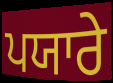
ਪਯਾਰੇ